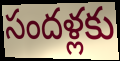
సందళ్లకు